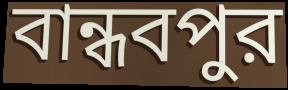
বান্ধবপুর